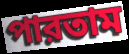
পারতাম